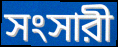
সংসারী